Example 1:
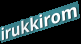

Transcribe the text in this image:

irukkirom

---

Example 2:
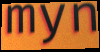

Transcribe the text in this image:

myn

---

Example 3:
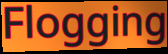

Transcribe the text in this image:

Flogging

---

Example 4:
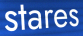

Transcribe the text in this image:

stares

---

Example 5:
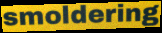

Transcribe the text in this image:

smoldering